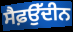
ਸੈਫ਼ਉੱਦੀਨ